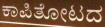
ಕಾಪಿತೋಟದ